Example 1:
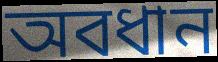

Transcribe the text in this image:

অবধান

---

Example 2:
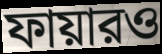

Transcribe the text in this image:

ফায়ারও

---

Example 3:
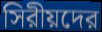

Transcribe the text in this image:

সিরীয়দের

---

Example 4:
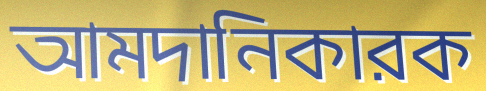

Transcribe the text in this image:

আমদানিকারক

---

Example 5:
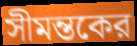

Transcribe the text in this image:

সীমন্তকের